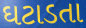
ઘટાડતા